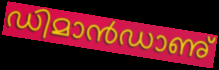
ഡിമാൻഡാണു്